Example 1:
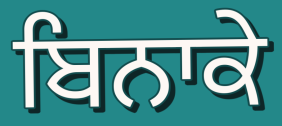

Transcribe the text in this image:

ਬਿਨਾਕੇ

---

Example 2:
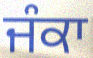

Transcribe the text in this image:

ਜੰਕਾ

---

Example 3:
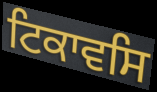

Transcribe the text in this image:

ਟਿਕਾਵਸਿ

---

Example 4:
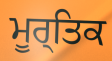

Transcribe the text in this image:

ਮੂਰ੍ਤਿਕ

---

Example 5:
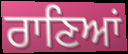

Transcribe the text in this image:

ਰਾਣਿਆਂ